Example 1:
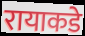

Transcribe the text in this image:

रायाकडे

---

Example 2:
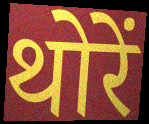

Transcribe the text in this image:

थोरें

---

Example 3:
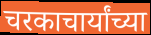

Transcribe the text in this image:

चरकाचार्यांच्या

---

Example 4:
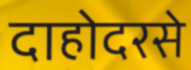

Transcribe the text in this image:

दाहोदरसे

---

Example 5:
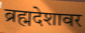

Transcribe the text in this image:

ब्रह्मदेशावर